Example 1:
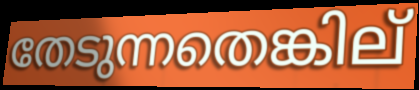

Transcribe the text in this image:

തേടുന്നതെങ്കില്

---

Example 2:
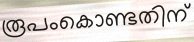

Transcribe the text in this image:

രൂപംകൊണ്ടതിന്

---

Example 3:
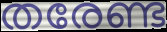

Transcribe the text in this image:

തരേണ്ട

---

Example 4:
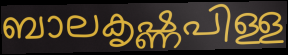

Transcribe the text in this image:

ബാലകൃഷ്ണപിള്ള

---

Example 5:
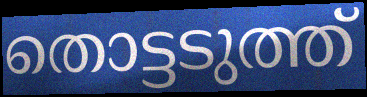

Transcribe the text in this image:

തൊട്ടടുത്ത്